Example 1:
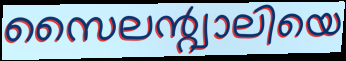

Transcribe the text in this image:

സൈലന്റ്വാലിയെ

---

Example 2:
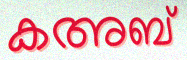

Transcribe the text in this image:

കഅബ്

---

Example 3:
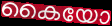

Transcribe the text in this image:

കൈയോ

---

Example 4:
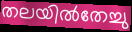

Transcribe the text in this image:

തലയിൽതേച്ചു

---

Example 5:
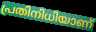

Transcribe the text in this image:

പ്രതിനിധിയാണ്